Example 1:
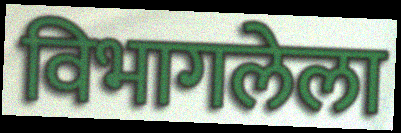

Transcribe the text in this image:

विभागलेला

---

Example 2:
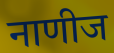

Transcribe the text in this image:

नाणीज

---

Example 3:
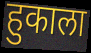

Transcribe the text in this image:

हुकाला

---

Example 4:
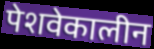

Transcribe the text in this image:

पेशवेकालीन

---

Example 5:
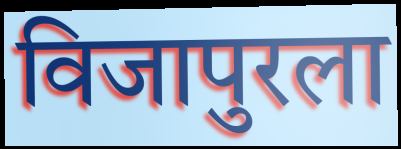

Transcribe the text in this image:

विजापुरला